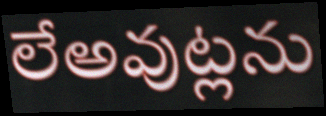
లేఅవుట్లను